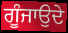
ਗੂੰਜਾਉਦੇ